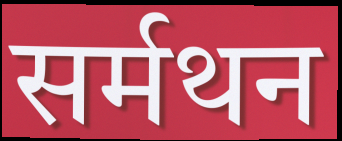
सर्मथन